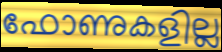
ഫോണുകളില്ല